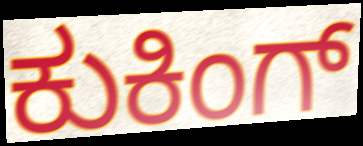
ಕುಕಿಂಗ್